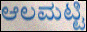
ಆಲಮಟ್ಟಿ